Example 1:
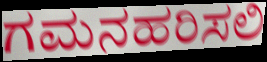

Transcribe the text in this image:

ಗಮನಹರಿಸಲಿ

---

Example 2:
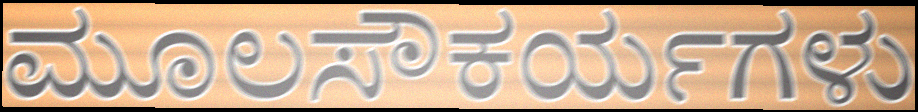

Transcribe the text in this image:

ಮೂಲಸೌಕರ್ಯಗಳು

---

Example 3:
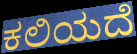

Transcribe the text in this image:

ಕಲಿಯದೆ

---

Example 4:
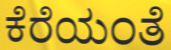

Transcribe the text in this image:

ಕೆರೆಯಂತೆ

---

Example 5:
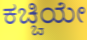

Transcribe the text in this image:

ಕಚ್ಚಿಯೇ